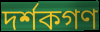
দর্শকগণ